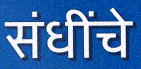
संधींचे